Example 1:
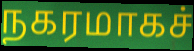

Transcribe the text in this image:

நகரமாகச்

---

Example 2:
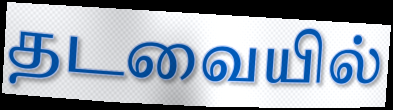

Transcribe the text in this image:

தடவையில்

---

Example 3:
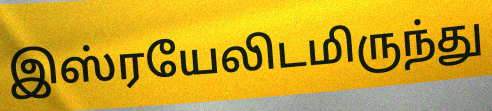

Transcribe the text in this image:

இஸ்ரயேலிடமிருந்து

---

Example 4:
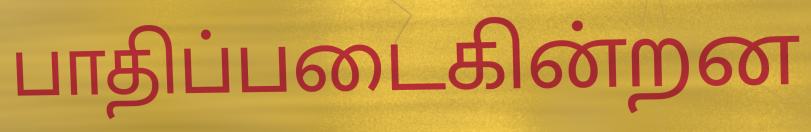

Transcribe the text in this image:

பாதிப்படைகின்றன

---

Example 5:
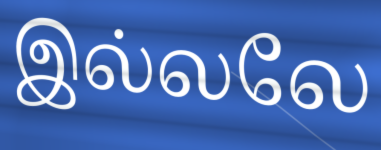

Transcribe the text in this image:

இல்லலே